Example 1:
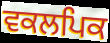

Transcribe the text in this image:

ਵਕਲਪਿਕ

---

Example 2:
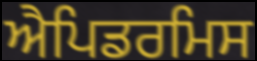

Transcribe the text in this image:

ਐਪਿਡਰਮਿਸ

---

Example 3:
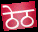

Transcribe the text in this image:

ਠੇਠ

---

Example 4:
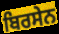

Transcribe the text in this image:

ਬਿਰਸੇਨ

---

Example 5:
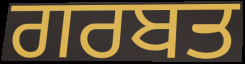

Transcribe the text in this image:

ਗਰਬਤ